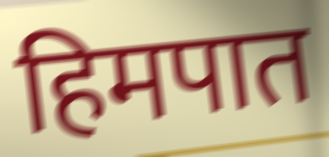
हिमपात